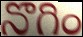
నొగిం